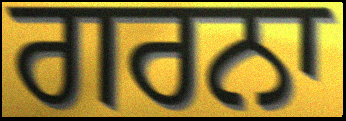
ਗਰਨਾ